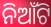
ନିଆଁଟି